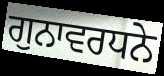
ਗੁਨਾਵਰਧਨੇ